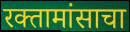
रक्तामांसाचा